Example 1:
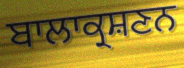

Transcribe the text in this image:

ਬਾਲਾਕ੍ਰਸ਼ਣਨ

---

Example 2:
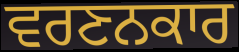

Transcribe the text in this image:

ਵਰਣਨਕਾਰ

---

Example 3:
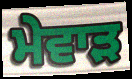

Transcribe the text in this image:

ਮੇਵਾੜ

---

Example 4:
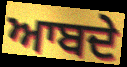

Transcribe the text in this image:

ਆਬਦੇ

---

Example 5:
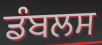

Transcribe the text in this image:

ਡੰਬਲਸ